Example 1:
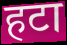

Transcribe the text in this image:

हटा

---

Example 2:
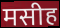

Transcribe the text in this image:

मसीह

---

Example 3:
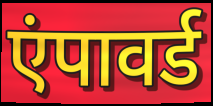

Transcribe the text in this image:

एंपावर्ड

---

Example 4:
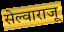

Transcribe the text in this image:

सेल्वाराजू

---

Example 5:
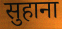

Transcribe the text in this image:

सुहाना